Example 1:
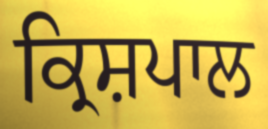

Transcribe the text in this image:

ਕ੍ਰਿਸ਼ਪਾਲ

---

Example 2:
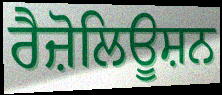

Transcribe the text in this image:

ਰੈਜ਼ੋਲਿਊਸ਼ਨ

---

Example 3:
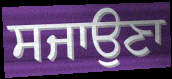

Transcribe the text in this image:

ਸਜਾਉਣਾ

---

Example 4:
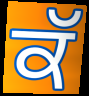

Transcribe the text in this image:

ਕੱ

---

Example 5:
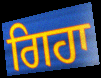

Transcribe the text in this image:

ਗਿਹਾ